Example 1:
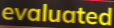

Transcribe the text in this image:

evaluated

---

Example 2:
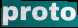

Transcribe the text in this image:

proto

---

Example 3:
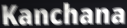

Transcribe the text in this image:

Kanchana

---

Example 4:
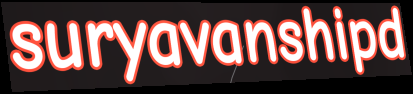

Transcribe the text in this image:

suryavanshipd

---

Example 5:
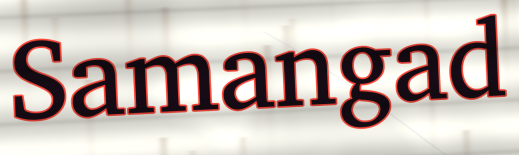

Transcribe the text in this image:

Samangad